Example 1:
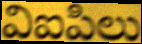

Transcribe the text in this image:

విఐపిలు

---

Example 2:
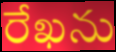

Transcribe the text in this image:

రేఖను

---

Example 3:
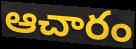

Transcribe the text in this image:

ఆచారం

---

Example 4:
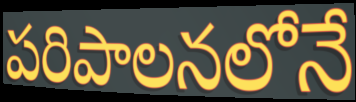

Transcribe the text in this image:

పరిపాలనలోనే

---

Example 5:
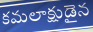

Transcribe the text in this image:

కమలాక్షుడైన